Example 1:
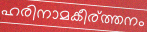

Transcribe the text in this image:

ഹരിനാമകീര്ത്തനം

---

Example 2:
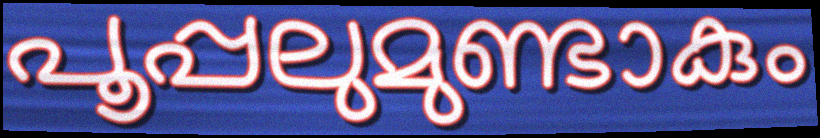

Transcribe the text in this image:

പൂപ്പലുമുണ്ടാകും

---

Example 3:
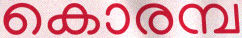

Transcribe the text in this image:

കൊരമ്പ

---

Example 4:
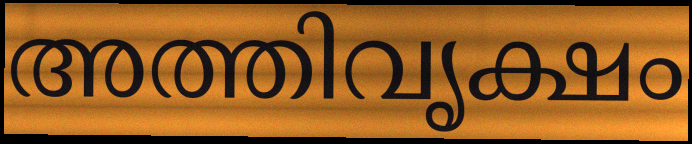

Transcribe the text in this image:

അത്തിവൃക്ഷം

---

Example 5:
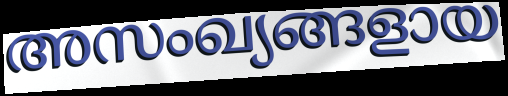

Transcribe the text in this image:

അസംഖ്യങ്ങളായ